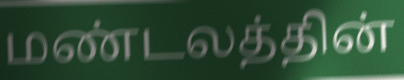
மண்டலத்தின்